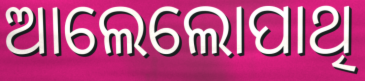
ଆଲେଲୋପାଥି